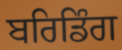
ਬਰਿਡਿੰਗ